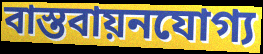
বাস্তবায়নযোগ্য